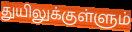
துயிலுக்குள்ளும்